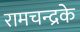
रामचन्द्रके